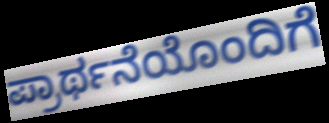
ಪ್ರಾರ್ಥನೆಯೊಂದಿಗೆ